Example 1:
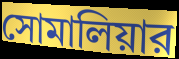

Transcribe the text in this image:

সোমালিয়ার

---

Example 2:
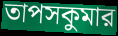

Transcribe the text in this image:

তাপসকুমার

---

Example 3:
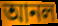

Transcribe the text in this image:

আনল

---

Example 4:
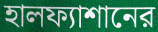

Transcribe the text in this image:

হালফ্যাশানের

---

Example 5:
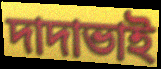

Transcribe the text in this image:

দাদাভাই